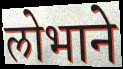
लोभाने